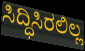
ಸಿದ್ಧಿಸಿರಲಿಲ್ಲ